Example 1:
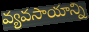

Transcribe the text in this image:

వ్యవసాయాన్ని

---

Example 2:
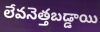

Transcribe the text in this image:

లేవనెత్తబడ్డాయి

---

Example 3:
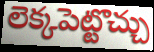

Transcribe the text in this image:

లెక్కపెట్టొచ్చు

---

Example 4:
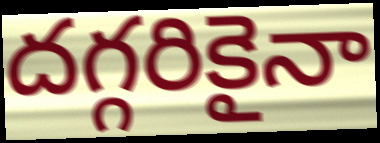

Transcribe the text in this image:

దగ్గరికైనా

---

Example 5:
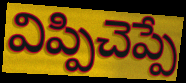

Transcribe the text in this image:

విప్పిచెప్పే